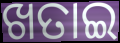
ଖତାଇ